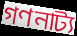
গণনাট্য